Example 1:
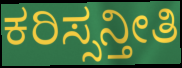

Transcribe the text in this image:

ಕರಿಸ್ಸನ್ತೀತಿ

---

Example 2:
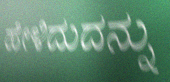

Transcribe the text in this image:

ಹೇಳಿದುದನ್ನು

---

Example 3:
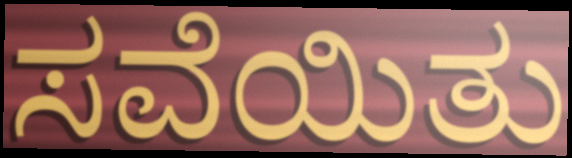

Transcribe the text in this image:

ಸವೆಯಿತು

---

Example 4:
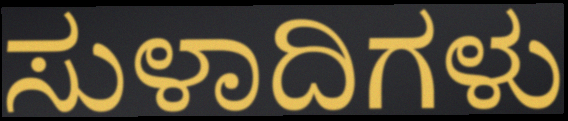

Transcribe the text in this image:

ಸುಳಾದಿಗಳು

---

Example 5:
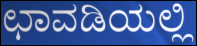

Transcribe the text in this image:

ಛಾವಡಿಯಲ್ಲಿ